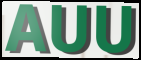
AUU